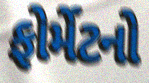
ફોર્મેટનો